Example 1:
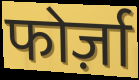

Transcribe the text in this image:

फोर्ज़ा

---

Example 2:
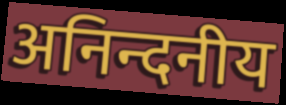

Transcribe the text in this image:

अनिन्दनीय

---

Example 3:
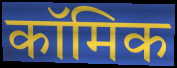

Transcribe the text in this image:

कॉमिक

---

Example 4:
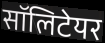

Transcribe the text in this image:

सॉलिटेयर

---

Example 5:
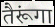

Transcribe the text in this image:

तैरूंगा